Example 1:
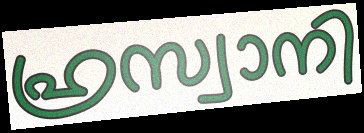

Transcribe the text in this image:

ഹ്രസ്വാനി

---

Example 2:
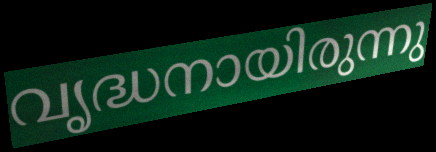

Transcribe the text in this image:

വൃദ്ധനായിരുന്നു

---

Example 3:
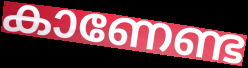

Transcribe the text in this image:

കാണേണ്ട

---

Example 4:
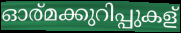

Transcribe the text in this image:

ഓര്മക്കുറിപ്പുകള്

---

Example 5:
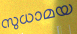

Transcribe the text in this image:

സുധാമയ